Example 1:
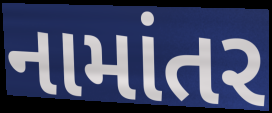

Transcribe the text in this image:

નામાંતર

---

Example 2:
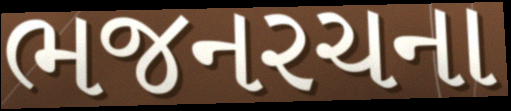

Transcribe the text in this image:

ભજનરચના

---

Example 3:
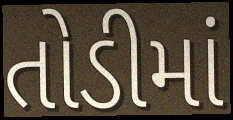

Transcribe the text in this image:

તોડીમાં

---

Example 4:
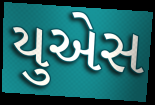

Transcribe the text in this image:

યુએસ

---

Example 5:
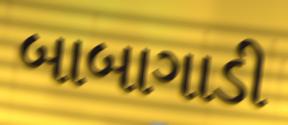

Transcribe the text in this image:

બાબાગાડી